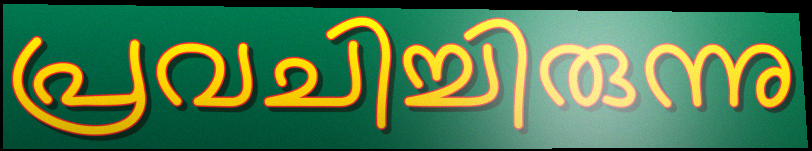
പ്രവചിച്ചിരുന്നു